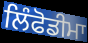
ਲਿੰਫੋਡੀਮਾ